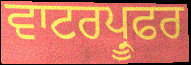
ਵਾਟਰਪ੍ਰੂਫਰ